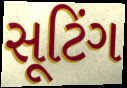
સૂટિંગ